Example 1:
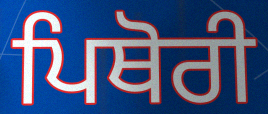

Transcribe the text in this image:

ਪਿਥੋਰੀ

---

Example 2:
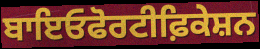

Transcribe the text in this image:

ਬਾਇਓਫੋਰਟੀਫ਼ਿਕੇਸ਼ਨ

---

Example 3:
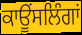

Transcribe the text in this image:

ਕਾਊਂਸਲਿੰਗਾਂ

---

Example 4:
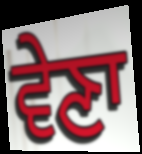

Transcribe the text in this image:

ਵੇਣਾ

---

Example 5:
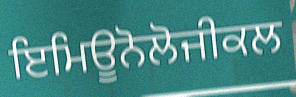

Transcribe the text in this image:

ਇਮਿਊਨੋਲੋਜੀਕਲ